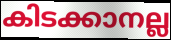
കിടക്കാനല്ല